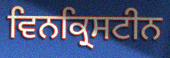
ਵਿਨਕ੍ਰਿਸਟੀਨ